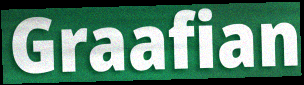
Graafian